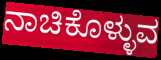
ನಾಚಿಕೊಳ್ಳುವ